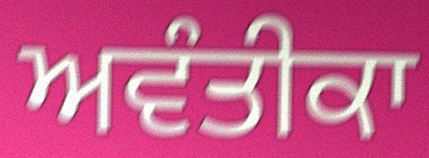
ਅਵੰਤੀਕਾ